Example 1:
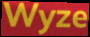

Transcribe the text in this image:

Wyze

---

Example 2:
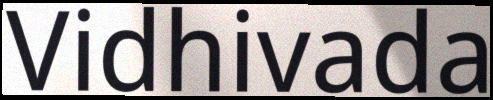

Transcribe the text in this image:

Vidhivada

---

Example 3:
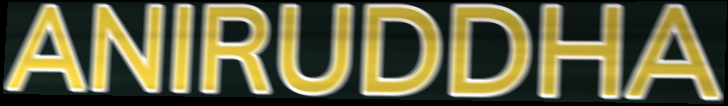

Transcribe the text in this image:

ANIRUDDHA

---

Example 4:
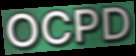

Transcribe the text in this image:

OCPD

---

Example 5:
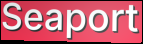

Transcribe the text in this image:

Seaport